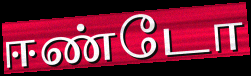
ஈண்டோ